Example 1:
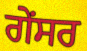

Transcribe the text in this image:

ਗੇਂਸਰ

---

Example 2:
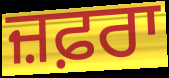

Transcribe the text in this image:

ਜ਼ਫ਼ਰਾ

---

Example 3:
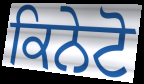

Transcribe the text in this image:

ਕਿਨੇਟੋ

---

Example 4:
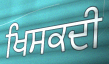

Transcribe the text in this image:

ਖਿਸਕਦੀ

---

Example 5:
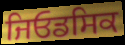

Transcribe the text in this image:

ਜਿਓਡਸਿਕ